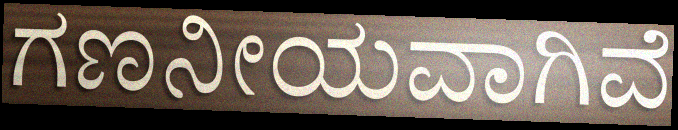
ಗಣನೀಯವಾಗಿವೆ